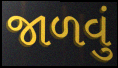
જાળવું